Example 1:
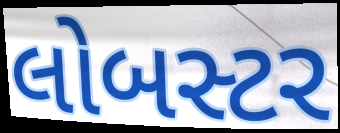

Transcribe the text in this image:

લોબસ્ટર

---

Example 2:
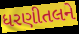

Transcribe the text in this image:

ધરણીતલને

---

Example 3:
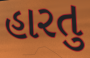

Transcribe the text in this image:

હારતુ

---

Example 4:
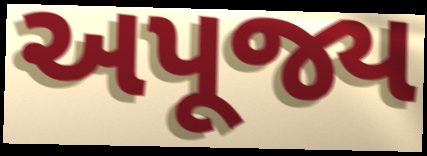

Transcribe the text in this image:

અપૂજ્ય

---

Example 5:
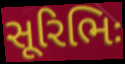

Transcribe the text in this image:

સૂરિભિઃ